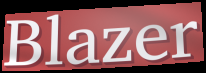
Blazer